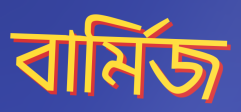
বার্মিজ